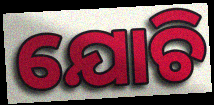
ଯୋଚି